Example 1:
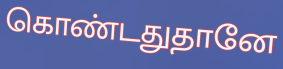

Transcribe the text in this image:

கொண்டதுதானே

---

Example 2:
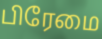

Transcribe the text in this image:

பிரேமை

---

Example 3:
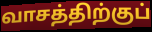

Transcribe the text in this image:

வாசத்திற்குப்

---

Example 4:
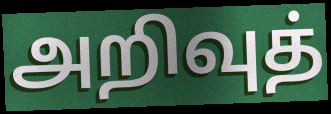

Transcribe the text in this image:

அறிவுத்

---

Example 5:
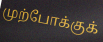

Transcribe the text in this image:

முற்போக்குக்